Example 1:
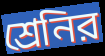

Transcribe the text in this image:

শ্রেনির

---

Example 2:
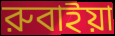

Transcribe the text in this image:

রুবাইয়া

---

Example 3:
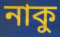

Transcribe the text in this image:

নাকু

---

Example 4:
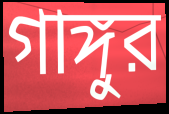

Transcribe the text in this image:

গাঙ্গুর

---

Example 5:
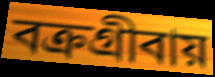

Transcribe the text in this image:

বক্রগ্রীবায়